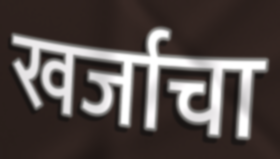
खर्जाचा